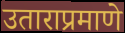
उताराप्रमाणे